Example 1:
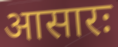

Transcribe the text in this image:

आसारः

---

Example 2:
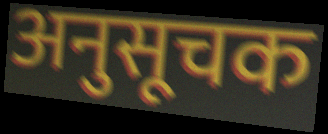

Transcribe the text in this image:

अनुसूचक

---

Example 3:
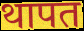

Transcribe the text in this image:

थापत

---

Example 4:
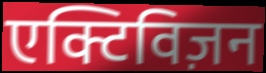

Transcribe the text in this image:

एक्टिविज़न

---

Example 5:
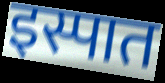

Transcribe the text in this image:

इस्पात